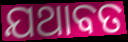
ଯଥାବତ